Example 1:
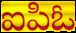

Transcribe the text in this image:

ఐపిఓ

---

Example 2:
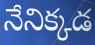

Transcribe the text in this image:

నేనిక్కడ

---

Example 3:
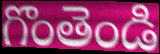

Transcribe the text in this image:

గొంతెండి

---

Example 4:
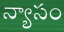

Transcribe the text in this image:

న్యాసం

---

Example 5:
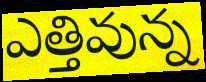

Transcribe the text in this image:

ఎత్తివున్న